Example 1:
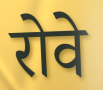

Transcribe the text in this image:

रोवे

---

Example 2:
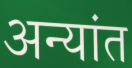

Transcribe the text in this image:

अन्यांत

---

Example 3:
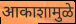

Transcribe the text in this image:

आकाशामुळे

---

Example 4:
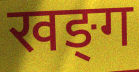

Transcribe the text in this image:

खङ्ग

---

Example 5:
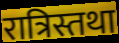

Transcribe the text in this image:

रात्रिस्तथा